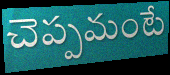
చెప్పమంటే